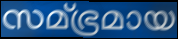
സമ്ഭ്രമായ